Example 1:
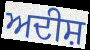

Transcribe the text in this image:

ਅਦੀਸ਼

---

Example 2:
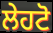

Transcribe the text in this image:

ਲੇਹਟੋ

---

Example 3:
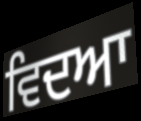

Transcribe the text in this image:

ਵਿਦਆ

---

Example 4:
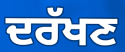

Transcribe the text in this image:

ਦਰੱਖਣ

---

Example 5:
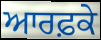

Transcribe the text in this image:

ਆਰਫ਼ਕੇ